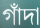
গাঁদা